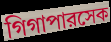
গিগাপারসেক